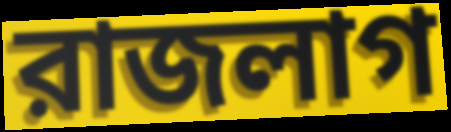
রাজলাগ